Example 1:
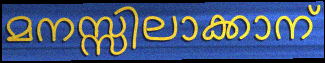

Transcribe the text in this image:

മനസ്സിലാക്കാന്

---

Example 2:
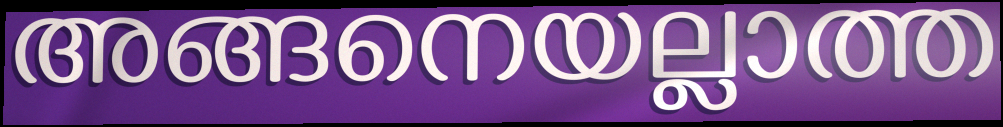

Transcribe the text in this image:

അങ്ങനെയല്ലാത്ത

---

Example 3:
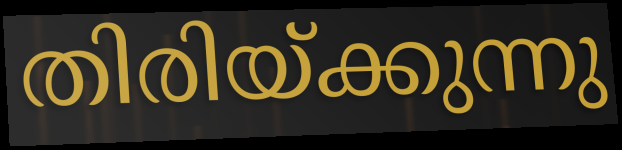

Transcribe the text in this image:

തിരിയ്ക്കുന്നു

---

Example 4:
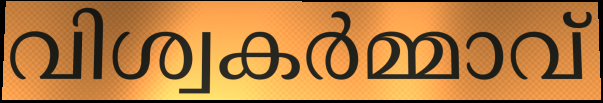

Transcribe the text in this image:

വിശ്വകർമ്മാവ്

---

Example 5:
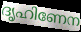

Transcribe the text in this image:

ദൃഹിണേന